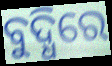
ବୁଦ୍ଧିରେ